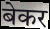
बेकर